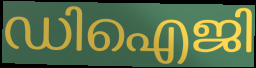
ഡിഐജി